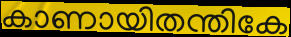
കാണായിതന്തികേ